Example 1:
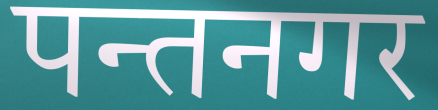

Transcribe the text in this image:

पन्तनगर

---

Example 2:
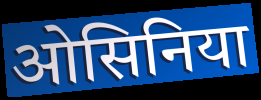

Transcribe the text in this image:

ओसिनिया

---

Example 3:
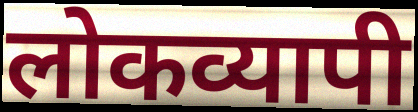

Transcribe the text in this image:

लोकव्यापी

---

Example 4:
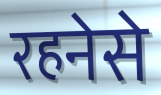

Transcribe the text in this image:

रहनेसे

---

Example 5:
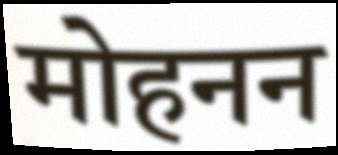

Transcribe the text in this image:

मोहनन